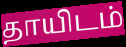
தாயிடம்